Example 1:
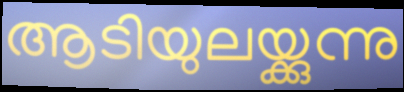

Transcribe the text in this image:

ആടിയുലയ്ക്കുന്നു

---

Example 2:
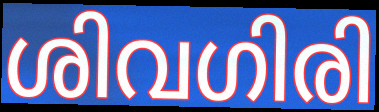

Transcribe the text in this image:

ശിവഗിരി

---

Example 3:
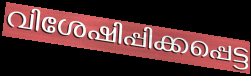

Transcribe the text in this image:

വിശേഷിപ്പിക്കപ്പെട്ട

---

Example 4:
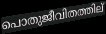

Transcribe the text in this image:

പൊതുജീവിതത്തില്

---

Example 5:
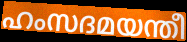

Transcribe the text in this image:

ഹംസദമയന്തീ